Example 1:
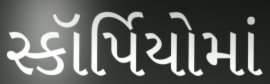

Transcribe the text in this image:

સ્કૉર્પિયોમાં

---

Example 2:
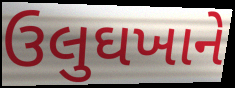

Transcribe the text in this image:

ઉલુઘખાને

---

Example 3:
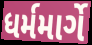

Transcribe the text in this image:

ધર્મમાર્ગે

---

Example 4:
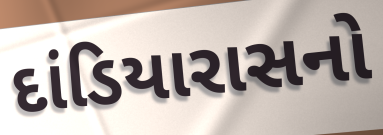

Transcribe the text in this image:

દાંડિયારાસનો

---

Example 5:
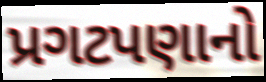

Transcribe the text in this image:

પ્રગટપણાનો